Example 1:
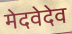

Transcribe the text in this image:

मेदवेदेव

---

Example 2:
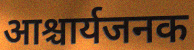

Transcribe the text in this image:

आश्चार्यजनक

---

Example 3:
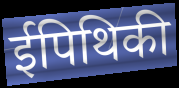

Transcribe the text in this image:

ईपिथिकी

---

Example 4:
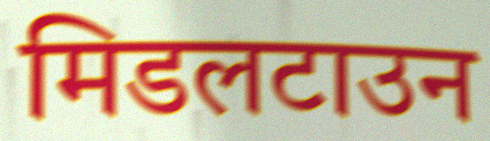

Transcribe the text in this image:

मिडलटाउन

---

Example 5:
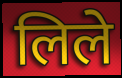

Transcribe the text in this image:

लिले